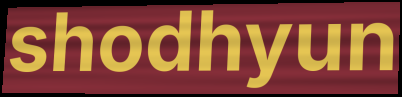
shodhyun